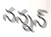
నన్నన్